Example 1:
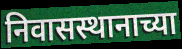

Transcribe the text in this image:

निवासस्थानाच्या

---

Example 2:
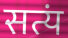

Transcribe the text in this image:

सत्यं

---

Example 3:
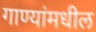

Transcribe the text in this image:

गाण्यांमधील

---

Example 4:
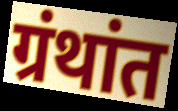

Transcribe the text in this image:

ग्रंथांत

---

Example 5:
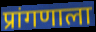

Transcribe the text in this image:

प्रांगणाला